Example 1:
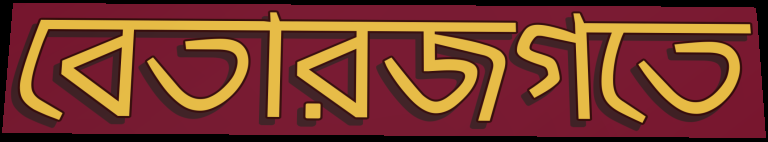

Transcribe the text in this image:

বেতারজগতে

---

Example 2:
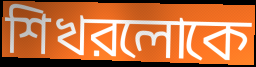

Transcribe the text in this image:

শিখরলোকে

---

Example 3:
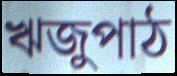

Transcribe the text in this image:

ঋজুপাঠ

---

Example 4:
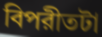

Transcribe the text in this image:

বিপরীতটা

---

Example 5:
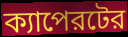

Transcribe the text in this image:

ক্যাপেরটের